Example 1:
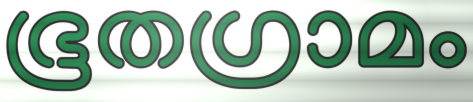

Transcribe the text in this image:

ഭൂതഗ്രാമം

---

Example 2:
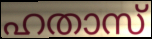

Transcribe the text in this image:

ഹതാസ്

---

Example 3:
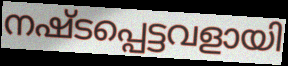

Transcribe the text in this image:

നഷ്ടപ്പെട്ടവളായി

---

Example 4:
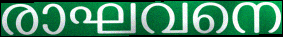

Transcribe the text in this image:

രാഘവനെ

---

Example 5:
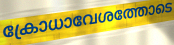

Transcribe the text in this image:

ക്രോധാവേശത്തോടെ